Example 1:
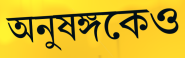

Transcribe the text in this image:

অনুষঙ্গকেও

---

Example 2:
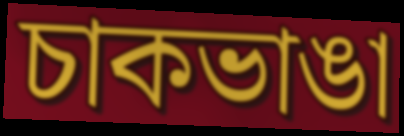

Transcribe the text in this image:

চাকভাঙা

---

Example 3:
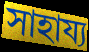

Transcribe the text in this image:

সাহায্য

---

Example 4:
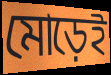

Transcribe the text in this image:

মোড়েই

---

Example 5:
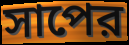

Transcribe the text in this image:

সাপের